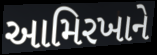
આમિરખાને